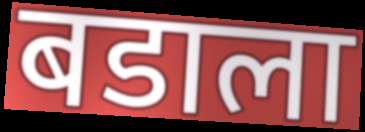
बडाला